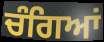
ਚੰਗਿਆਂ